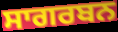
ਸਾਗਰਬਨ